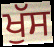
ਖੁੱਸ